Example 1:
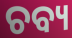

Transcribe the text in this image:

ଚବ୍ୟ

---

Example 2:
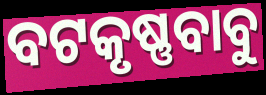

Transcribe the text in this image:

ବଟକୃଷ୍ଣବାବୁ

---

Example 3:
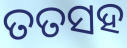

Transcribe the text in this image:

ତତସହ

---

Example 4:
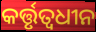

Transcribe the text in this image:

କର୍ତ୍ତୃତ୍ୱଧୀନ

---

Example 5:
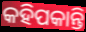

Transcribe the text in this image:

କହିପକାନ୍ତି